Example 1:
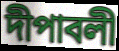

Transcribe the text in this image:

দীপাবলী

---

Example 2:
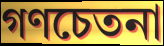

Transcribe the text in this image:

গণচেতনা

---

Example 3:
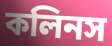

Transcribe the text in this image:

কলিনস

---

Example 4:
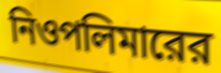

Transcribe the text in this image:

নিওপলিমারের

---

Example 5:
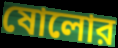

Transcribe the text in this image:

ষোলোর